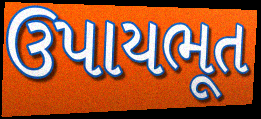
ઉપાયભૂત